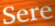
Sere